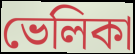
ভেলিকা